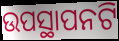
ଉପସ୍ଥାପନଟି